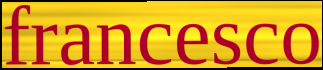
francesco